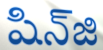
షిన్‌జి